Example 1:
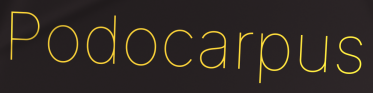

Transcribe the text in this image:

Podocarpus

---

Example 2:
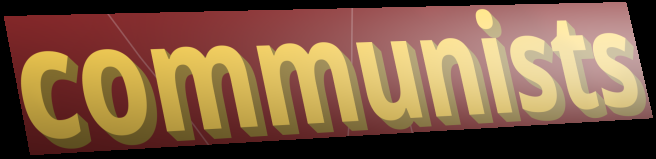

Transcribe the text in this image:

communists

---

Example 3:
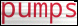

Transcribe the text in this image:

pumps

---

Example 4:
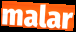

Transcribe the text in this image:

malar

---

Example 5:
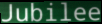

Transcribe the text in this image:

Jubilee